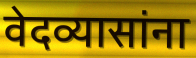
वेदव्यासांना